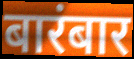
बारंबार